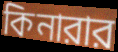
কিনারার